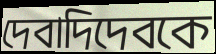
দেবাদিদেবকে